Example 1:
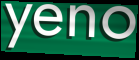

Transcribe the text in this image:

yeno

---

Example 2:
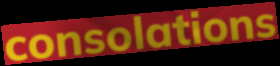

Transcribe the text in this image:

consolations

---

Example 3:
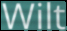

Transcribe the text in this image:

Wilt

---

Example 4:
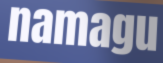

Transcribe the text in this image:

namagu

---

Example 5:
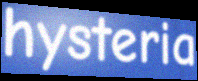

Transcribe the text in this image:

hysteria